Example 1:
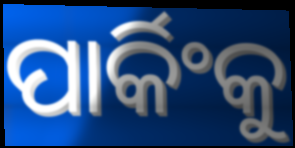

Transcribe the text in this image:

ପାର୍କିଂକୁ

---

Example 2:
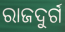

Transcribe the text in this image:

ରାଜଦୁର୍ଗ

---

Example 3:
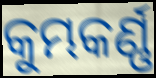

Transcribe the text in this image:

କୁମ୍ଭକର୍ଣ୍ଣ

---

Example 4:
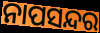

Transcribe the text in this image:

ନାପସନ୍ଦର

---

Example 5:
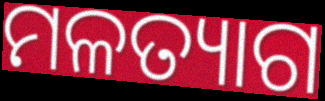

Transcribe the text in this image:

ମଳତ୍ୟାଗ